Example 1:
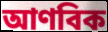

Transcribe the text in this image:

আণবিক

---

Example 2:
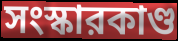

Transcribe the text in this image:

সংস্কারকাণ্ড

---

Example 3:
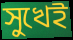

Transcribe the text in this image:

সুখেই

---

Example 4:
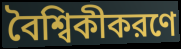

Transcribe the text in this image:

বৈশ্বিকীকরণে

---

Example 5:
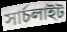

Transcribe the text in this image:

সার্চলাইট